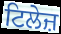
ਟਿਲੇਜ਼